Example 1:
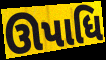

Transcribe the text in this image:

ઊપાધિ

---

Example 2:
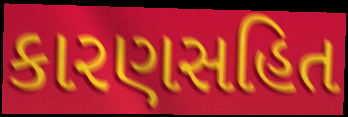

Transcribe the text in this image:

કારણસહિત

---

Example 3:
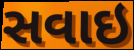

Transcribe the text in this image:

સવાઇ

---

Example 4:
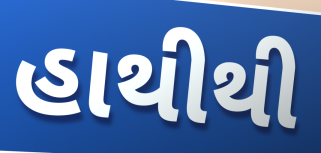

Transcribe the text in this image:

હાથીથી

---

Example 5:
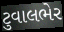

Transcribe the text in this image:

ટુવાલભેર